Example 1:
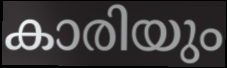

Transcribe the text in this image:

കാരിയും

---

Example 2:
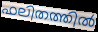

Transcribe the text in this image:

ഫലിതത്തിൽ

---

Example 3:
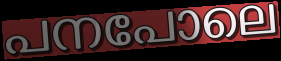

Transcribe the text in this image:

പനപോലെ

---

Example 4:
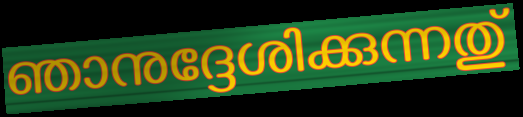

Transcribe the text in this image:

ഞാനുദ്ദേശിക്കുന്നതു്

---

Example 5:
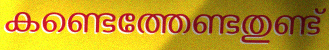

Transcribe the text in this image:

കണ്ടെത്തേണ്ടതുണ്ട്